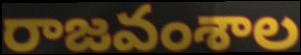
రాజవంశాల